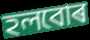
হলবোৰ